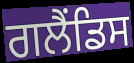
ਗਲੈਂਡਿਸ